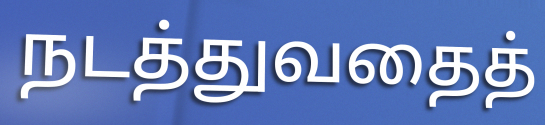
நடத்துவதைத்